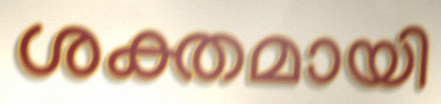
ശക്തമായി